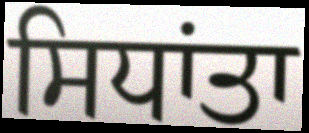
ਸਿਧਾਂਤਾ